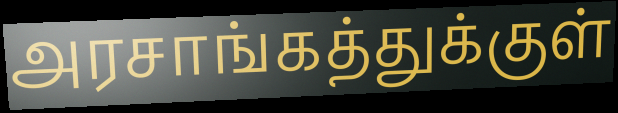
அரசாங்கத்துக்குள்